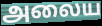
அலைய